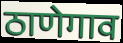
ठाणेगाव